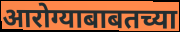
आरोग्याबाबतच्या